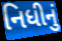
નિધીનું